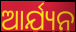
ଆର୍ଯ୍ୟନ